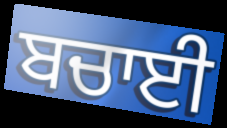
ਬਚਾਈ